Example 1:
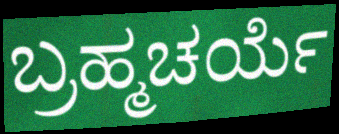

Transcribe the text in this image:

ಬ್ರಹ್ಮಚರ್ಯೆ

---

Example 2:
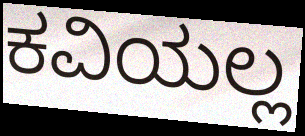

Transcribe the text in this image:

ಕವಿಯಲ್ಲ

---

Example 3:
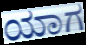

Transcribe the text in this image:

ಯಾಗ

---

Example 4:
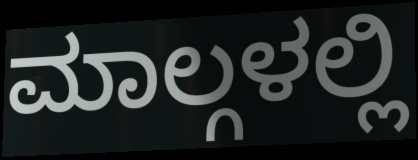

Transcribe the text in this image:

ಮಾಲ್ಗಳಲ್ಲಿ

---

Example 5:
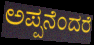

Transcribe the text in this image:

ಅಪ್ಪನೆಂದರೆ